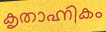
കൃതാഹ്നികം